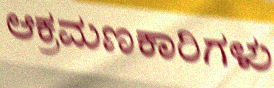
ಆಕ್ರಮಣಕಾರಿಗಳು